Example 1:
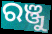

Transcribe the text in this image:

ରଞ୍ଜୁ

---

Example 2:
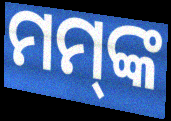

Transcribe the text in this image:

ମମ୍‍ଙ୍କ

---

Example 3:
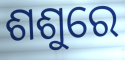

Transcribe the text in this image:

ଶଶୁରେ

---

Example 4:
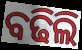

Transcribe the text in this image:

ବଢିଲି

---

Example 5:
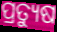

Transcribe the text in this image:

ପ୍ରତ୍ୟୁଷ